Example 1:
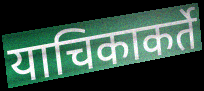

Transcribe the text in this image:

याचिकाकर्ते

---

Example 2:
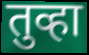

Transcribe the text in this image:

तुव्हा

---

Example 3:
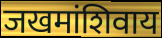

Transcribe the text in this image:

जखमांशिवाय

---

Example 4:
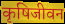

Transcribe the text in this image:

कृषिजीवन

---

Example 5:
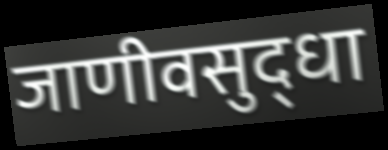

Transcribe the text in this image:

जाणीवसुद्धा